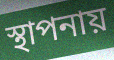
স্থাপনায়